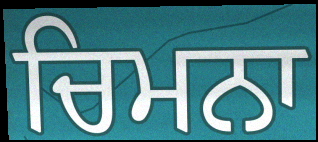
ਚਿਮਨਾ